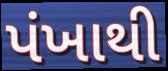
પંખાથી